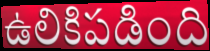
ఉలికిపడింది